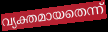
വ്യക്തമായതെന്ന്